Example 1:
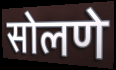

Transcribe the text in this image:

सोलणे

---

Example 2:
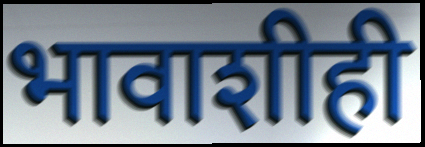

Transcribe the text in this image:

भावाशीही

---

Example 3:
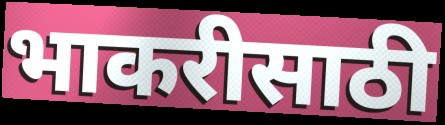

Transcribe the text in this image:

भाकरीसाठी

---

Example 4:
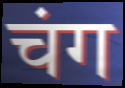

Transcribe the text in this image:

चंग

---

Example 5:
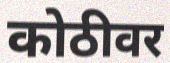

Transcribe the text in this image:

कोठीवर